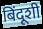
बिंदूशी